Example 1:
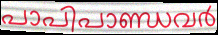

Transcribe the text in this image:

പാപിപാണ്ഡവർ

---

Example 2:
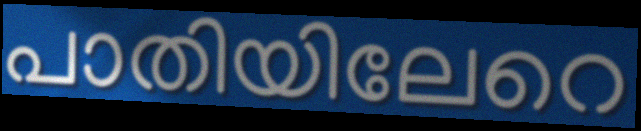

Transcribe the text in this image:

പാതിയിലേറെ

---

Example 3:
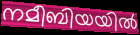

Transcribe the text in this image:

നമീബിയയിൽ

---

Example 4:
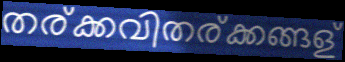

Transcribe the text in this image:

തര്ക്കവിതര്ക്കങ്ങള്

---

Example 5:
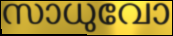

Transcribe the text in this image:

സാധുവോ